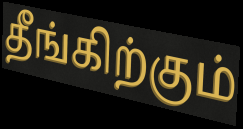
தீங்கிற்கும்